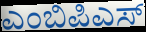
ಎಂಬಿಪಿಎಸ್